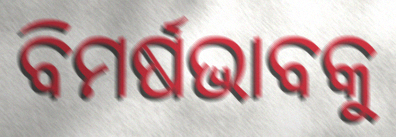
ବିମର୍ଷଭାବକୁ